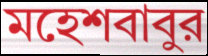
মহেশবাবুর